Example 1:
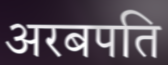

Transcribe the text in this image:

अरबपति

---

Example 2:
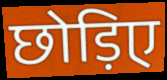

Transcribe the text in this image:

छोड़िए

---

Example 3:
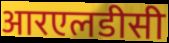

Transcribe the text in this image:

आरएलडीसी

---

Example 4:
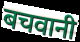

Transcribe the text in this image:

बचवानी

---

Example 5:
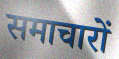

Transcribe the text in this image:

समाचारों